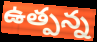
ఉత్పన్న